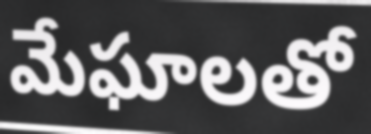
మేఘాలతో